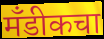
मँडीकचा